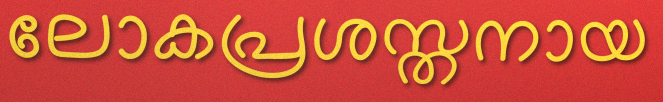
ലോകപ്രശസ്തനായ